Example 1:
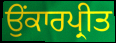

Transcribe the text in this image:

ਉਂਕਾਰਪ੍ਰੀਤ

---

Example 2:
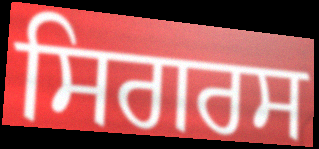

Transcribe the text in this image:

ਸਿਗਰਸ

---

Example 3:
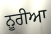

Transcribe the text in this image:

ਨੂਰੀਆ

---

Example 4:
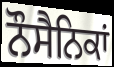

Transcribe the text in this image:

ਨੌਸੈਨਿਕਾਂ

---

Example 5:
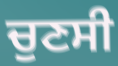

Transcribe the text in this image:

ਚੁਣਸੀ